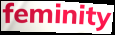
feminity